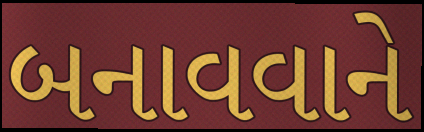
બનાવવાને